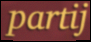
partij